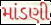
માંડણી